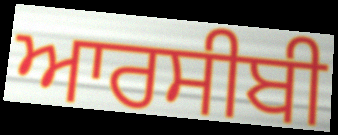
ਆਰਸੀਬੀ